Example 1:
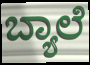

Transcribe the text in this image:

ಬ್ಯಾಲೆ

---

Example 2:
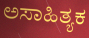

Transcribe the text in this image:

ಅಸಾಹಿತ್ಯಕ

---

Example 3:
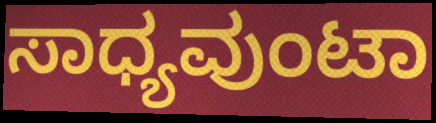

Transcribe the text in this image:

ಸಾಧ್ಯವುಂಟಾ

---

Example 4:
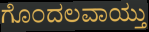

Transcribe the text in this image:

ಗೊಂದಲವಾಯ್ತು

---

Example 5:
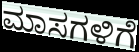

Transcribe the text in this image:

ಮಾಸಗಳಿಗೆ